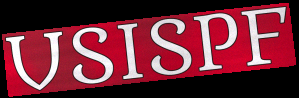
USISPF